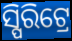
ସ୍ପିରିଟ୍ରେ